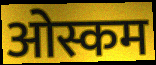
ओस्कम